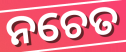
ନଚେତ